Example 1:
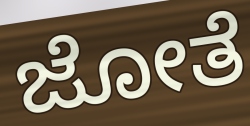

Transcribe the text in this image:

ಜೋತೆ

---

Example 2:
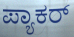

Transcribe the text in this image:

ಪ್ಯಾಕರ್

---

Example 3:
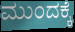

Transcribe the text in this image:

ಮುಂದಕ್ಕೆ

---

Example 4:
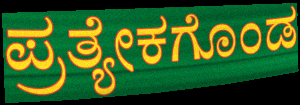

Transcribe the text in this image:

ಪ್ರತ್ಯೇಕಗೊಂಡ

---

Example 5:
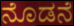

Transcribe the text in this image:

ನೊಡನೆ